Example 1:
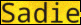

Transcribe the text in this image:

Sadie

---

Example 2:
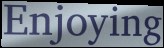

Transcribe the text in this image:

Enjoying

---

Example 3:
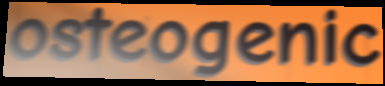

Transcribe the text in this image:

osteogenic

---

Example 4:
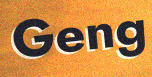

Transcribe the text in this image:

Geng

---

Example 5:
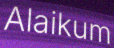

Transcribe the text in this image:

Alaikum